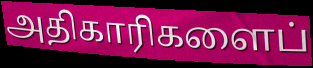
அதிகாரிகளைப்